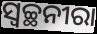
ସ୍ବଚ୍ଛନୀରା